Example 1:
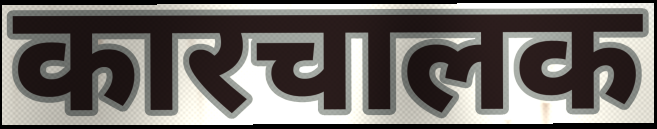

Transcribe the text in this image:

कारचालक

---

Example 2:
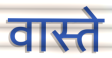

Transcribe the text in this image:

वास्ते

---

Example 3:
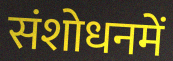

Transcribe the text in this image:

संशोधनमें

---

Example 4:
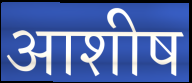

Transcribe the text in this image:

आशीष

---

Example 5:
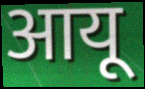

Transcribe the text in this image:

आयू